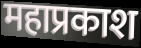
महाप्रकाश